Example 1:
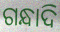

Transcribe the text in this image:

ଗନ୍ଧାଦି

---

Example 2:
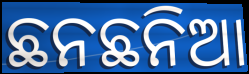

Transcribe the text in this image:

ଛନଛନିଆ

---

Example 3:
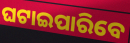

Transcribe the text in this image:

ଘଟାଇପାରିବେ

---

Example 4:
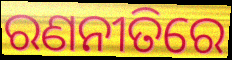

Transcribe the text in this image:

ରଣନୀତିରେ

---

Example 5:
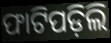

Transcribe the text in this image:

ଫାଟିପଡ଼ିଲି